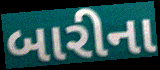
બારીના